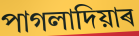
পাগলাদিয়াৰ